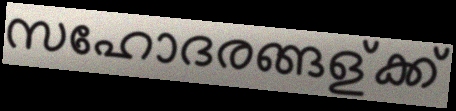
സഹോദരങ്ങള്ക്ക്